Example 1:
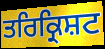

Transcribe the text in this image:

ਤਰਿਕ੍ਰਿਸ਼ਟ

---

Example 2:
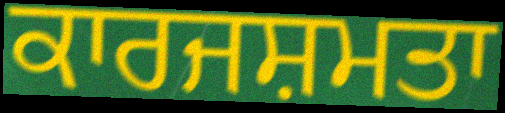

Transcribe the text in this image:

ਕਾਰਜਸ਼ਮਤਾ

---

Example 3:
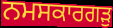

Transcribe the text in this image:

ਨਮਸਕਾਰਗੜੁ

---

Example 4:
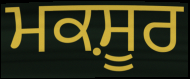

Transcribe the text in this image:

ਮਕ਼ਸੂਰ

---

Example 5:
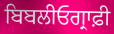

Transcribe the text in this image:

ਬਿਬਲੀਓਗ੍ਰਾਫ਼ੀ